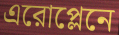
এরোপ্লেনে